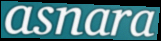
asnara